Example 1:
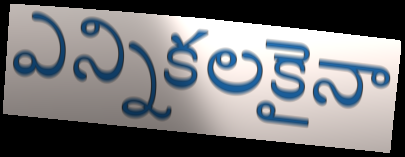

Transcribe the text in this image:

ఎన్నికలకైనా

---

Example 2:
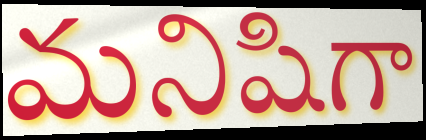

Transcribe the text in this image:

మనిషిగా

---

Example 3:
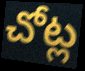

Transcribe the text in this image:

చోట్ల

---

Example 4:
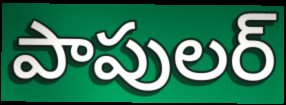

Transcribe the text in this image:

పాపులర్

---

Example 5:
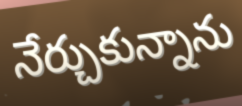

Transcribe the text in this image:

నేర్చుకున్నాను